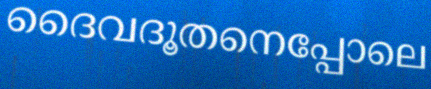
ദൈവദൂതനെപ്പോലെ